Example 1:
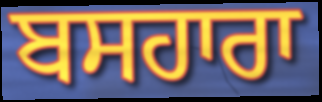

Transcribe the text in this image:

ਬਸਹਾਰਾ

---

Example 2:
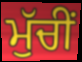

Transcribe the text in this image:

ਮੁੱਚੀਂ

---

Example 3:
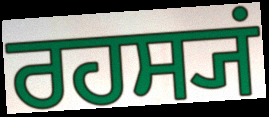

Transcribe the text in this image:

ਰਹਸ੍ਯਂ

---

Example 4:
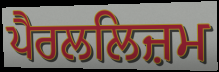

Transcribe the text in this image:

ਪੈਰਲਲਿਜ਼ਮ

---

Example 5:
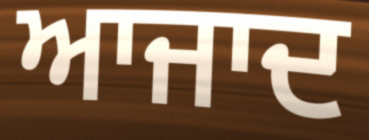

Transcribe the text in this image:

ਆਜਾਦ